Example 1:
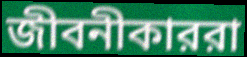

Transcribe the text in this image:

জীবনীকাররা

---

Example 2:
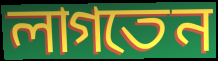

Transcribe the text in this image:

লাগতেন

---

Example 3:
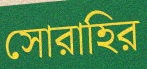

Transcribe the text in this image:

সোরাহির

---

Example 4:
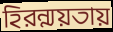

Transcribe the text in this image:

হিরন্ময়তায়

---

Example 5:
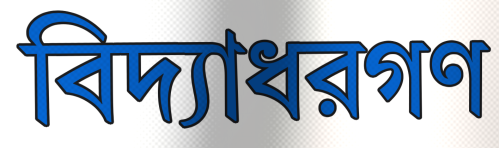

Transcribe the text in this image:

বিদ্যাধরগণ